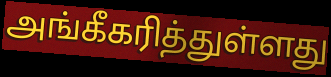
அங்கீகரித்துள்ளது